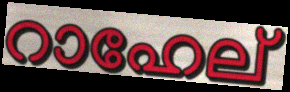
റാഹേല്